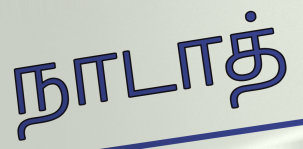
நாடாத்